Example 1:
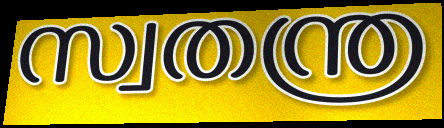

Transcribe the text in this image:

സ്വതന്ത്ര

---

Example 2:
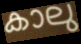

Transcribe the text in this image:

കാലു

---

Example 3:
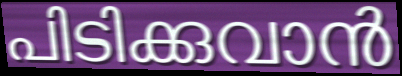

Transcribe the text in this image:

പിടിക്കുവാൻ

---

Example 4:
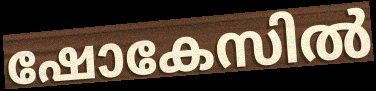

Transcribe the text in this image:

ഷോകേസിൽ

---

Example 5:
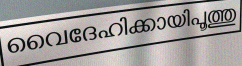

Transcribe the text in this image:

വൈദേഹിക്കായിപൂത്തു